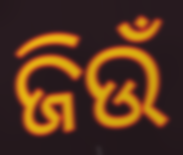
ଜିଉଁ